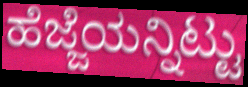
ಹೆಜ್ಜೆಯನ್ನಿಟ್ಟು